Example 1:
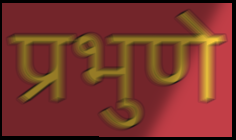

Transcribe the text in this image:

प्रभुणे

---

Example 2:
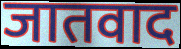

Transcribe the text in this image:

जातवाद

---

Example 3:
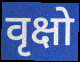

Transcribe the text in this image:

वृक्षो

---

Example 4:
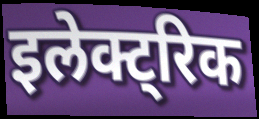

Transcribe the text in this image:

इलेक्ट्रिक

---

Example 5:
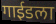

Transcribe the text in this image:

गाईडला